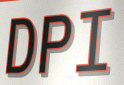
DPI